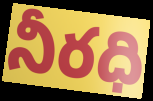
నీరధి